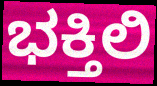
ಭಕ್ತಿಲಿ